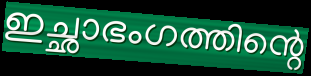
ഇച്ഛാഭംഗത്തിന്റെ